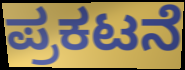
ಪ್ರಕಟನೆ